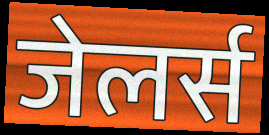
जेलर्स